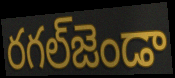
రగల్‌జెండా